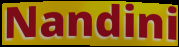
Nandini